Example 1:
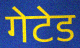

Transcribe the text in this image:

गेटेड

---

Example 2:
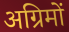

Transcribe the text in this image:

अग्रिमों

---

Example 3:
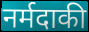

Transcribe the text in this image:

नर्मदाकी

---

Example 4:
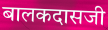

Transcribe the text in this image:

बालकदासजी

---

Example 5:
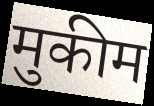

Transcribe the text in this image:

मुकीम